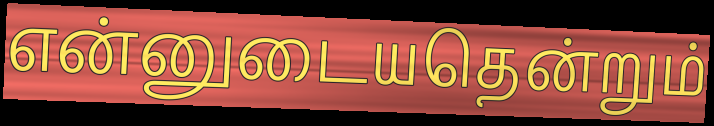
என்னுடையதென்றும்